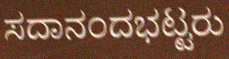
ಸದಾನಂದಭಟ್ಟರು